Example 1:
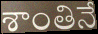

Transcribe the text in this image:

శాంతినే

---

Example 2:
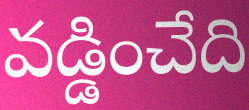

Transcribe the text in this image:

వడ్డించేది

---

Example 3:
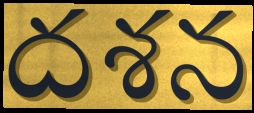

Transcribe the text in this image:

దశన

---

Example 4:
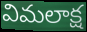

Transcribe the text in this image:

విమలాక్ష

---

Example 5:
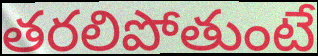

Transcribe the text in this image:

తరలిపోతుంటే